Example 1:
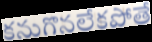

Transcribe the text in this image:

కనుగొనలేకపోతే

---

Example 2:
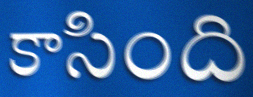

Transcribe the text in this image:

కాసింది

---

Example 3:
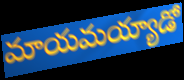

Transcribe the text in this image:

మాయమయ్యాడో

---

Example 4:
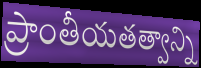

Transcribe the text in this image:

ప్రాంతీయతత్వాన్ని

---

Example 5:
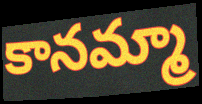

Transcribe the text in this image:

కానమ్మా